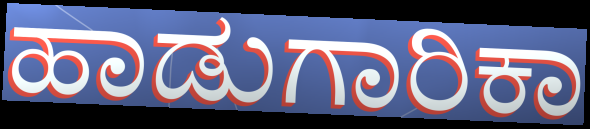
ಹಾಡುಗಾರಿಕಾ